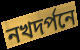
নখদর্পনে